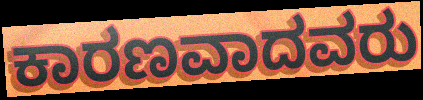
ಕಾರಣವಾದವರು